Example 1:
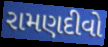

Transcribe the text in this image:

રામણદીવો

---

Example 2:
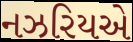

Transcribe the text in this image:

નઝરિયએ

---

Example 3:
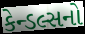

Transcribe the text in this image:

કેન્ડલ્સનો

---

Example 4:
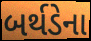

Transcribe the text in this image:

બર્થડેના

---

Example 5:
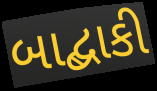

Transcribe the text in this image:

બાદ્બાકી